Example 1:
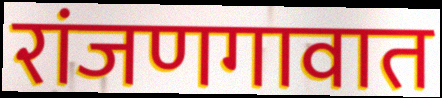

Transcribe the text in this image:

रांजणगावात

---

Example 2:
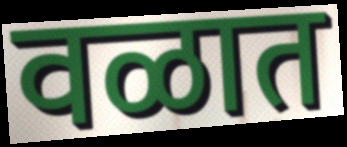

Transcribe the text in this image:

वळात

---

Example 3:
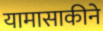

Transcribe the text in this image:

यामासाकीने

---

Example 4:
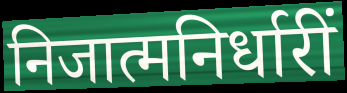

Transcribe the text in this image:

निजात्मनिर्धारीं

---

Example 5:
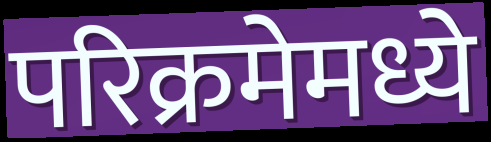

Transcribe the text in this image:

परिक्रमेमध्ये